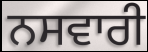
ਨਸਵਾਰੀ